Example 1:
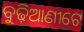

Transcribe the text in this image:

ବୁଢ଼ିଆଣୀଟେ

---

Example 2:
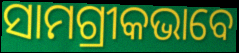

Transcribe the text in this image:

ସାମଗ୍ରୀକଭାବେ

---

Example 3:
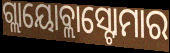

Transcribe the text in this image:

ଗ୍ଲାୟୋବ୍ଲାସ୍ଟୋମାର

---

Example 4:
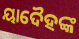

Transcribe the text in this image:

ୟାଦୈହଙ୍କ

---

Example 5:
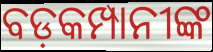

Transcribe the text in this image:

ବଡ଼କମ୍ପାନୀଙ୍କ